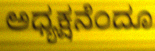
ಅಧ್ಯಕ್ಷನೆಂದೂ